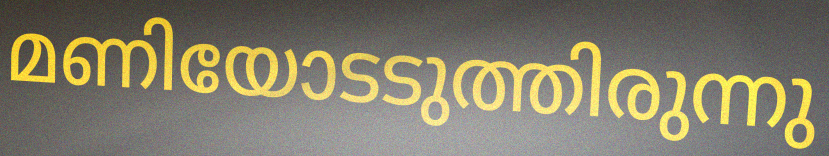
മണിയോടടുത്തിരുന്നു